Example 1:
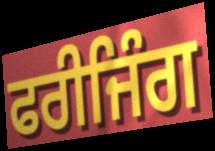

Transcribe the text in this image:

ਫਰੀਜਿੰਗ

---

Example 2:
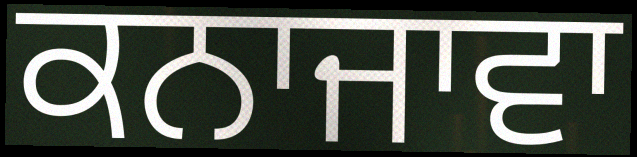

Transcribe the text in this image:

ਕਨਾਜਾਵਾ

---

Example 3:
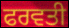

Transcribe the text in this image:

ਫਰਵਤੀ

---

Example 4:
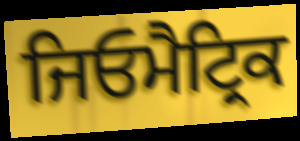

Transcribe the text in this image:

ਜਿਓਮੈਟ੍ਰਿਕ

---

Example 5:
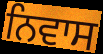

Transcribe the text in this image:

ਨਿਵਾਸ